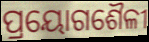
ପ୍ରୟୋଗଶୈଳୀ